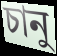
চানু